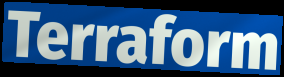
Terraform